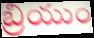
బ్రియుం